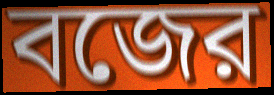
বজের